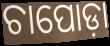
ଚାପୋଡ଼ା